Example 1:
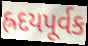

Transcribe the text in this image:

હ્રદયપૂર્વક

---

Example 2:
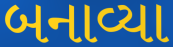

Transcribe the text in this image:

બનાવ્યા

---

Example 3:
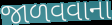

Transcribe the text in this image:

જાળવવાના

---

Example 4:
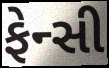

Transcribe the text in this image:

ફેન્સી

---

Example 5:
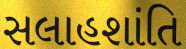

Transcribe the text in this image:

સલાહશાંતિ